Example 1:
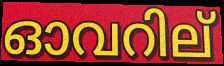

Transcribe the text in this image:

ഓവറില്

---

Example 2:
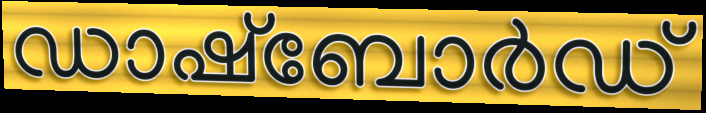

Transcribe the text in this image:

ഡാഷ്ബോർഡ്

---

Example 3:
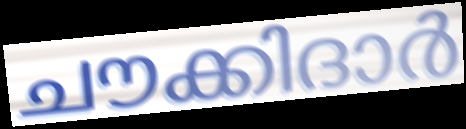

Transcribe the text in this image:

ചൗക്കിദാർ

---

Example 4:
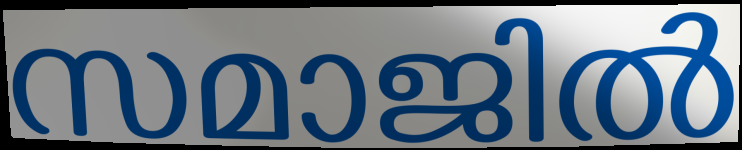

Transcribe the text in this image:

സമാജിൽ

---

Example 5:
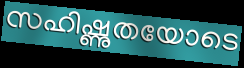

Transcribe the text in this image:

സഹിഷ്ണുതയോടെ